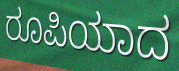
ರೂಪಿಯಾದ